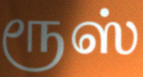
ரூஸ்